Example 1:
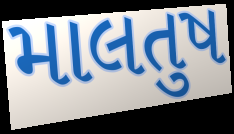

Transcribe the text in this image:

માલતુષ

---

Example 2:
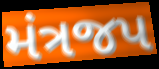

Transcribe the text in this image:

મંત્રજપ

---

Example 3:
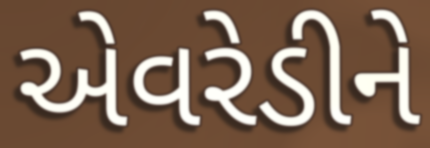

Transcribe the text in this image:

એવરેડીને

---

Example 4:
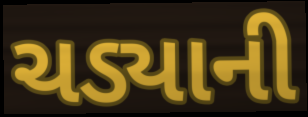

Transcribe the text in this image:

ચડ્યાની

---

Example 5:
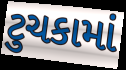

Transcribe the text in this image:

ટુચકામાં